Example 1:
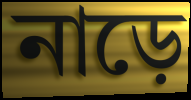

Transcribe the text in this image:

নাড়ে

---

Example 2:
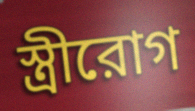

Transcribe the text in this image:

স্ত্রীরোগ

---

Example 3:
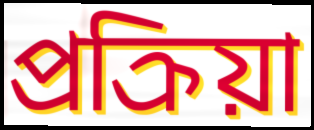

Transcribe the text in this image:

প্রক্রিয়া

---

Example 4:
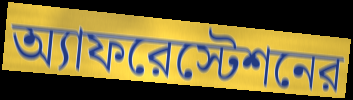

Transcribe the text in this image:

অ্যাফরেস্টেশনের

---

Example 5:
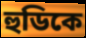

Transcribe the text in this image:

হুডিকে